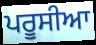
ਪਰੂਸੀਆ